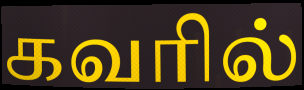
கவரில்